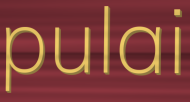
pulai